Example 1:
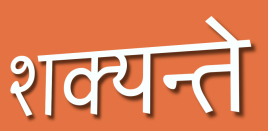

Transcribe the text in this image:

शक्यन्ते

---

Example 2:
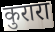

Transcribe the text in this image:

कुरारा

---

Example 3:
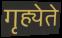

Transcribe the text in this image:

गृह्येते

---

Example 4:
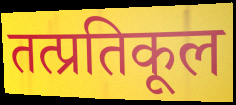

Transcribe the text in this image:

तत्प्रतिकूल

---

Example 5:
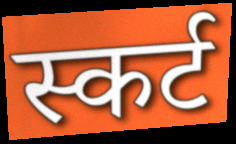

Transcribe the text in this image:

स्कर्ट